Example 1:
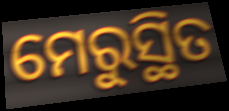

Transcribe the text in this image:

ମେରୁସ୍ଥିତ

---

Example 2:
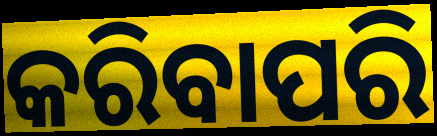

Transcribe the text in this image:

କରିବାପରି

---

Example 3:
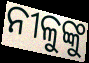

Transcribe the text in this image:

ନୀଳୁଙ୍କୁ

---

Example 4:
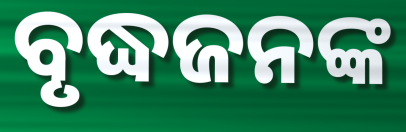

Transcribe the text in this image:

ବୃଦ୍ଧଜନଙ୍କ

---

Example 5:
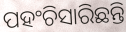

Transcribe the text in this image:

ପହଂଚିସାରିଛନ୍ତି